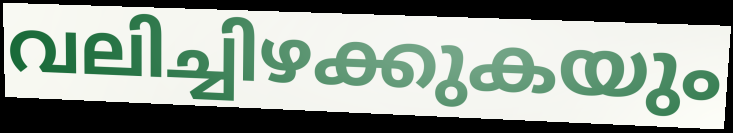
വലിച്ചിഴക്കുകയും